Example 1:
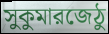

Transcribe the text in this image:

সুকুমারজেঠু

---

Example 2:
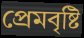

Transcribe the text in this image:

প্রেমবৃষ্টি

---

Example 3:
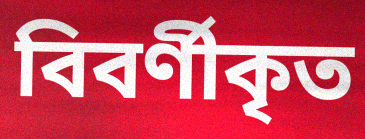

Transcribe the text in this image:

বিবর্ণীকৃত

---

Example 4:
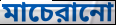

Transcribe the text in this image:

মাচেরানো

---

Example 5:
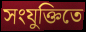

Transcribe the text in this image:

সংযুক্তিতে